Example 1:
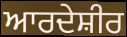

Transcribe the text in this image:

ਆਰਦੇਸ਼ੀਰ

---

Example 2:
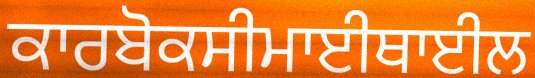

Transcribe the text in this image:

ਕਾਰਬੋਕਸੀਮਾਈਥਾਈਲ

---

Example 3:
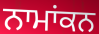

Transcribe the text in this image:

ਨਾਮਾਂਕਨ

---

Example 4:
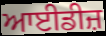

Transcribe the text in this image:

ਆਈਡੀਜ਼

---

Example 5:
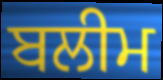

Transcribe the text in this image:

ਬਲੀਮ